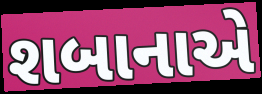
શબાનાએ